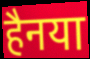
हैनया